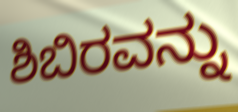
ಶಿಬಿರವನ್ನು